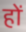
हों